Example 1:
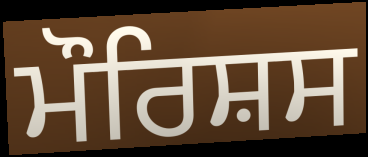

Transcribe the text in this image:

ਮੌਰਿਸ਼ਸ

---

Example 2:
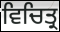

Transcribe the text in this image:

ਵਿਚਿਤ੍ਰ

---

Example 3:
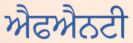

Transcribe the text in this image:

ਐਫਐਨਟੀ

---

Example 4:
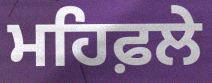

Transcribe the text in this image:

ਮਹਿਫ਼ਲੇ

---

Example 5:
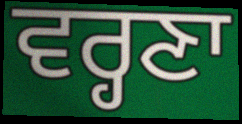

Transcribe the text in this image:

ਵਰ੍ਹਣਾ